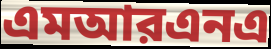
এমআরএনএ